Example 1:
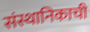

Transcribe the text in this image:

संस्थानिकाची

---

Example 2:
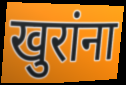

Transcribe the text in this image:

खुरांना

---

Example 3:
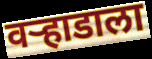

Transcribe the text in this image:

वऱ्हाडाला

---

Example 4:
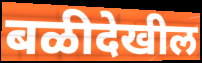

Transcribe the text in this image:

बळीदेखील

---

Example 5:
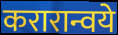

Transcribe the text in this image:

करारान्वये